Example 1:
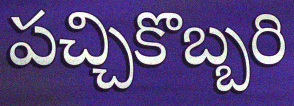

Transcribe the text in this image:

పచ్చికొబ్బరి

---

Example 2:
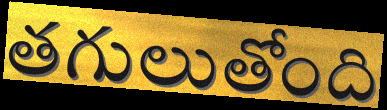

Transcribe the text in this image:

తగులుతోంది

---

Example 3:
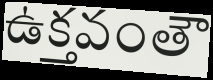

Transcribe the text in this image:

ఉక్తవంతౌ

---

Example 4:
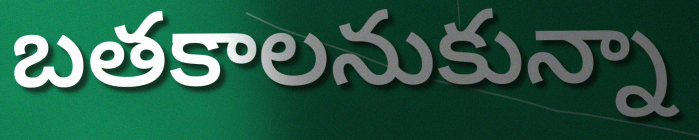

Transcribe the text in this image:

బతకాలనుకున్నా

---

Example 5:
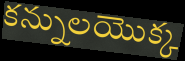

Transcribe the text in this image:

కన్నులయొక్క